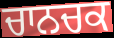
ਚਾਨਚਕ